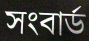
সংবার্ড